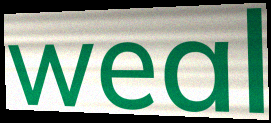
weal